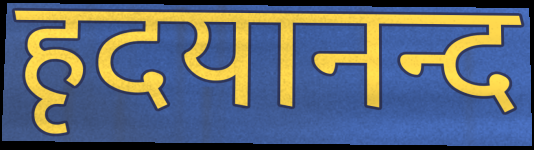
हृदयानन्द